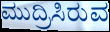
ಮುದ್ರಿಸಿರುವ